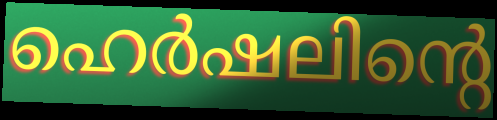
ഹെർഷലിന്റെ